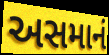
અસમાનં